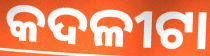
କଦଳୀଟା